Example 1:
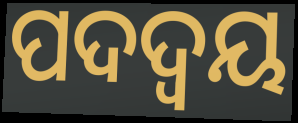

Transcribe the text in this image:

ପଦଦ୍ଵୟ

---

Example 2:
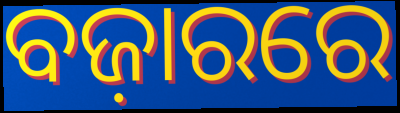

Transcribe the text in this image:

ବଜ଼ାରରେ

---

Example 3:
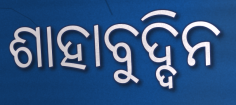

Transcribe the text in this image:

ଶାହାବୁଦ୍ଦିନ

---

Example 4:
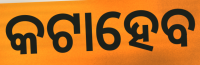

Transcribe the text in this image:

କଟାହେବ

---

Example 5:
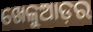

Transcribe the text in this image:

ଖେଳୁଆଡ଼ର